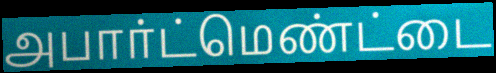
அபார்ட்மெண்ட்டை